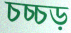
চচ্চড়